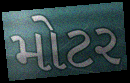
મોટર